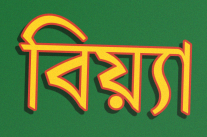
বিয়্যা